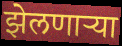
झेलणाऱ्या